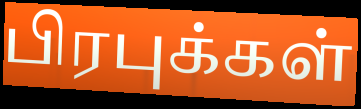
பிரபுக்கள்